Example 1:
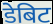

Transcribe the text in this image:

डेबिट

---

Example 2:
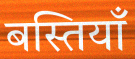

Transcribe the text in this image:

बस्तियाँ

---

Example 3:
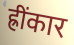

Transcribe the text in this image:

ह्रींकार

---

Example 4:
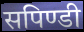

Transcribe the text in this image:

सपिण्डी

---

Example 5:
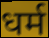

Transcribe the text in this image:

धर्म